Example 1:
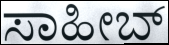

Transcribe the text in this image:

ಸಾಹೀಬ್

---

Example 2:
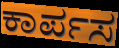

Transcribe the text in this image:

ಕಾರ್ಪಸ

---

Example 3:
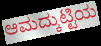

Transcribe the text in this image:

ಆಮದ್ಕುಟ್ಟಿಯ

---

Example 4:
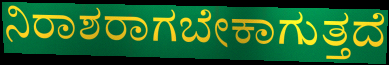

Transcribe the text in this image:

ನಿರಾಶರಾಗಬೇಕಾಗುತ್ತದೆ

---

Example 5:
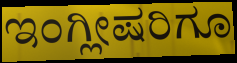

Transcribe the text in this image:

ಇಂಗ್ಲೀಷರಿಗೂ